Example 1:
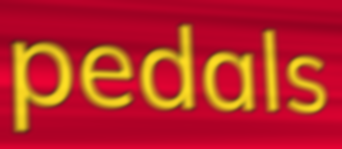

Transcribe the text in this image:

pedals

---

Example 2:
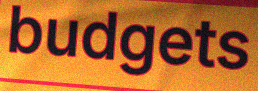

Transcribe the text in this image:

budgets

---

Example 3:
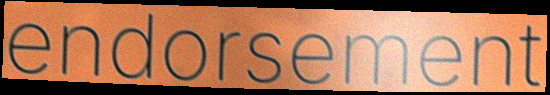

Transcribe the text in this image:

endorsement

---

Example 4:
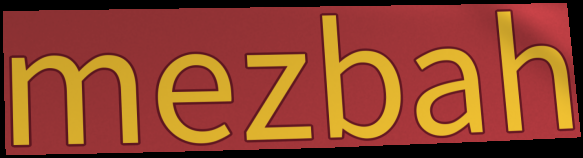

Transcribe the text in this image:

mezbah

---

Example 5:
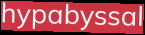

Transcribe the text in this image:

hypabyssal